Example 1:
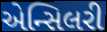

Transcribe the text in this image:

એન્સિલરી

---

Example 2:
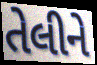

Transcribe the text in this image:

તેલીને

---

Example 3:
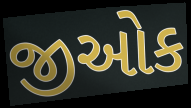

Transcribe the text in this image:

જીઓક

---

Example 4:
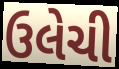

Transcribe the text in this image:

ઉલેચી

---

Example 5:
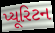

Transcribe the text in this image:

પ્યૂરિટન